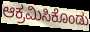
ಆಕ್ರಮಿಸಿಕೊಂಡು